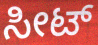
ಸೀಟ್